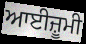
ਆਈਜ਼ੂਮੀ